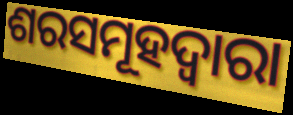
ଶରସମୂହଦ୍ୱାରା